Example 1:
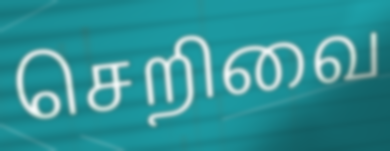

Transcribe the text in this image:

செறிவை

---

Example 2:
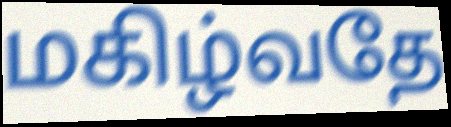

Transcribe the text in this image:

மகிழ்வதே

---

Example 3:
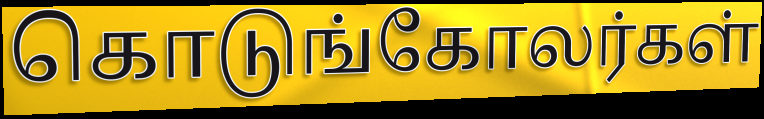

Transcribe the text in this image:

கொடுங்கோலர்கள்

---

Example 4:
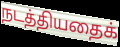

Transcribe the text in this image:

நடத்தியதைக்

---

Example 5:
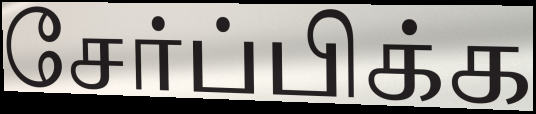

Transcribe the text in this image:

சேர்ப்பிக்க